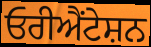
ਓਰੀਐਂਟੇਸ਼ਨ